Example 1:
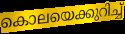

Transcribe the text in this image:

കൊലയെക്കുറിച്ച്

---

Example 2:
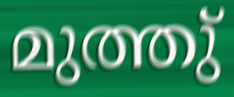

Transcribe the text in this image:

മുത്തു്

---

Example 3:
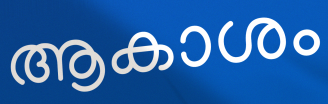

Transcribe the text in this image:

ആകാശം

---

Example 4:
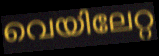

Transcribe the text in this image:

വെയിലേറ്റ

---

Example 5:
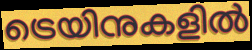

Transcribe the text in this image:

ട്രെയിനുകളിൽ